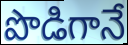
పొడిగానే